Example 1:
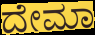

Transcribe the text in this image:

ದೇಮಾ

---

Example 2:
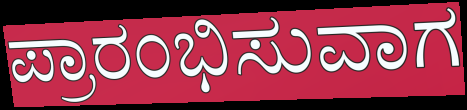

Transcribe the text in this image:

ಪ್ರಾರಂಭಿಸುವಾಗ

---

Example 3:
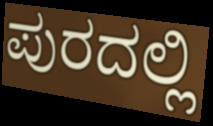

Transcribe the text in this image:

ಪುರದಲ್ಲಿ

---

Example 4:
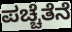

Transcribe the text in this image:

ಪಚ್ಚೆತೆನೆ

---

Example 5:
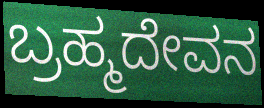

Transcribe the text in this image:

ಬ್ರಹ್ಮದೇವನ